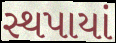
સ્થપાયાં